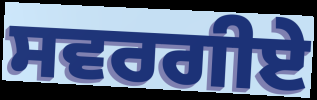
ਸਵਰਗੀਏ